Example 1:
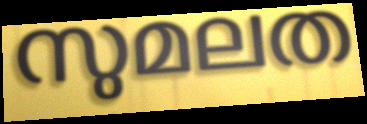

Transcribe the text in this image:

സുമലത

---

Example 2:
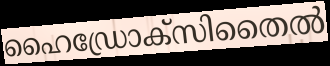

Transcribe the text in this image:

ഹൈഡ്രോക്സിതൈൽ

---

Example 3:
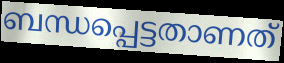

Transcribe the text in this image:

ബന്ധപ്പെട്ടതാണത്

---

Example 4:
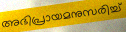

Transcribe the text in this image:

അഭിപ്രായമനുസരിച്ച്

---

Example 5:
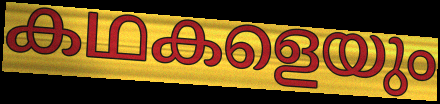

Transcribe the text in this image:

കഥകളെയും